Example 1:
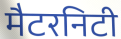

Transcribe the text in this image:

मैटरनिटी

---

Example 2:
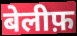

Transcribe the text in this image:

बेलीफ़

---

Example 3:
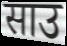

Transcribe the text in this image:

साउ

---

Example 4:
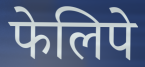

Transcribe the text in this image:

फेलिपे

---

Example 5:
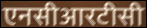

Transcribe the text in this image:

एनसीआरटीसी